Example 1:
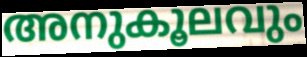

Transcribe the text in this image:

അനുകൂലവും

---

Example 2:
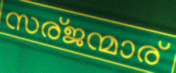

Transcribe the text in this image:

സര്ജന്മാര്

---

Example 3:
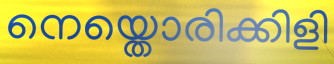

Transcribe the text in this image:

നെയ്തൊരിക്കിളി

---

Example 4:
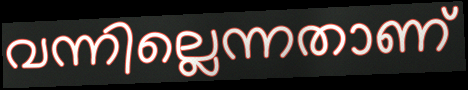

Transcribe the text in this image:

വന്നില്ലെന്നതാണ്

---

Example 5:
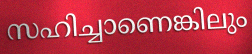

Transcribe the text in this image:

സഹിച്ചാണെങ്കിലും